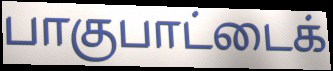
பாகுபாட்டைக்